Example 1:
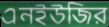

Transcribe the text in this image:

এনইউজির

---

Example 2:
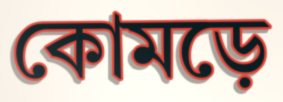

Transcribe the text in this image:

কোমড়ে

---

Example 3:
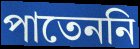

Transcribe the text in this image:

পাতেননি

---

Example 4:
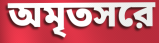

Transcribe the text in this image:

অমৃতসরে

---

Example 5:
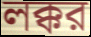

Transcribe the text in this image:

লক্কর